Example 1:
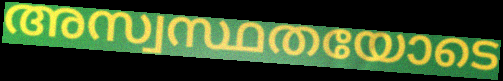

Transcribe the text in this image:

അസ്വസ്ഥതയോടെ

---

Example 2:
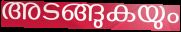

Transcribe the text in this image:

അടങ്ങുകയും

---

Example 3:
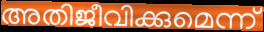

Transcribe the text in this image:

അതിജീവിക്കുമെന്ന്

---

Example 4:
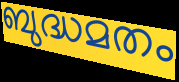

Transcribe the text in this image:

ബുദ്ധമതം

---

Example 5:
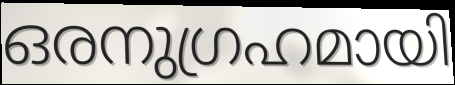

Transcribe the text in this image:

ഒരനുഗ്രഹമായി